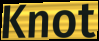
Knot